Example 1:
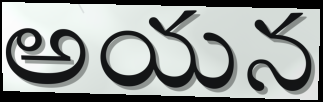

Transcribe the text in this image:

అయన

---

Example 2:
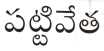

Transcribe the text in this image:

పట్టివేత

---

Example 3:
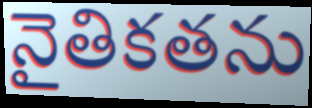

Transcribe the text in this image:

నైతికతను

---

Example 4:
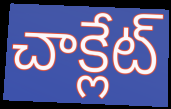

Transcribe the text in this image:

చాక్లేట్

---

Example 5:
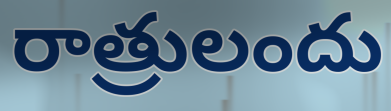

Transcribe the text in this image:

రాత్రులందు